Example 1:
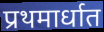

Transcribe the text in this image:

प्रथमार्धात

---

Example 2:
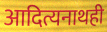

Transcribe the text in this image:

आदित्यनाथही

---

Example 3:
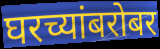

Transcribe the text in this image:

घरच्यांबरोबर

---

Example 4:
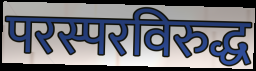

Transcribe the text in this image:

परस्परविरुद्ध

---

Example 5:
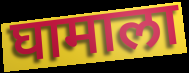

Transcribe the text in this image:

घामाला